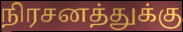
நிரசனத்துக்கு